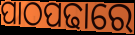
ପାଠପଢାରେ